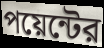
পয়েন্টের